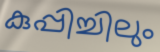
കുപ്പിച്ചിലും